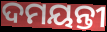
ଦମୟନ୍ତୀ